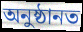
অনুষ্ঠানত